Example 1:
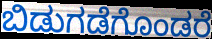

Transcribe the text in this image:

ಬಿಡುಗಡೆಗೊಂಡರೆ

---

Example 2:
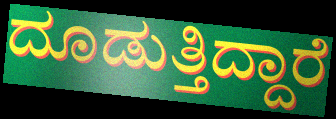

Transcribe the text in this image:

ದೂಡುತ್ತಿದ್ದಾರೆ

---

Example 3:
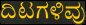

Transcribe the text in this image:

ದಿಟಗಳಿವು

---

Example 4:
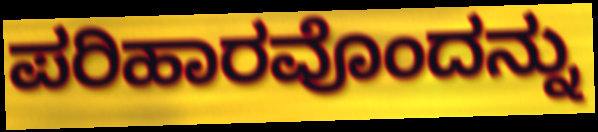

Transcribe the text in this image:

ಪರಿಹಾರವೊಂದನ್ನು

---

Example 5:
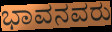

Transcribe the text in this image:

ಭಾವನವರು